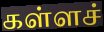
கள்ளச்